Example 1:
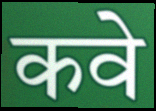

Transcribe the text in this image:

कवे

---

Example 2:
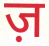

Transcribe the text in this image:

ज़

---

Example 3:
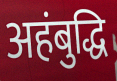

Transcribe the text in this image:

अहंबुद्धि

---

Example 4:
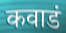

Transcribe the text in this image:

कवाडं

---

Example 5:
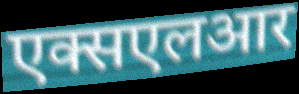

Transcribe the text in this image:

एक्सएलआर